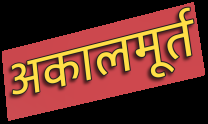
अकालमूर्त